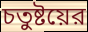
চতুষ্টয়ের